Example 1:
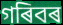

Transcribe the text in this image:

গৰিবৰ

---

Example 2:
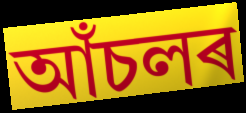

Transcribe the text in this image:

আঁচলৰ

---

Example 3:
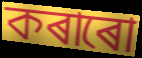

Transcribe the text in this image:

কৰাৰো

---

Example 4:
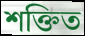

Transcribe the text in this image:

শক্তিত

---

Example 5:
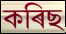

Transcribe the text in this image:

কৰিছ